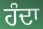
ਹੰਦਾ